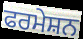
ਫਰਮੇਸ਼ਨ